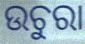
ଉଚୁରା